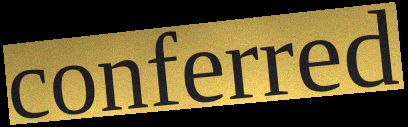
conferred